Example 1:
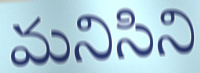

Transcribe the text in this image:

మనిసిని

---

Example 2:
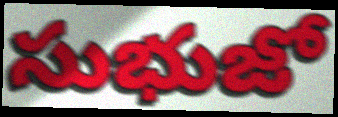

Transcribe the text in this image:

సుభుజో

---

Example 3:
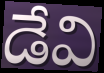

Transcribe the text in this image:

డేవి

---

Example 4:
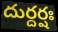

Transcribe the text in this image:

దుర్దర్షః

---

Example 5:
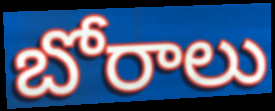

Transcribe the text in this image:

బోరాలు